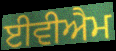
ਈਵੀਐਮ